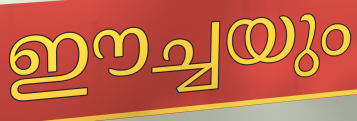
ഈച്ചയും